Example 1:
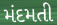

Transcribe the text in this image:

મંદમતી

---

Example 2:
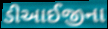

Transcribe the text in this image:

ડીઆઈજીના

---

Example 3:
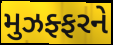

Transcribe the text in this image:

મુઝફ્ફરને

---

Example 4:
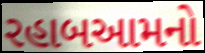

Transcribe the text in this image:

રહાબઆમનો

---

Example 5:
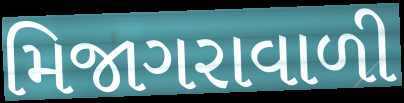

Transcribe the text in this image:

મિજાગરાવાળી